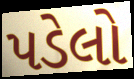
પડેલો